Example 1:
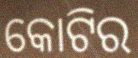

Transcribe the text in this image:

କୋଟିର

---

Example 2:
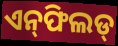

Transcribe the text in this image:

ଏନ୍‌ଫିଲଡ୍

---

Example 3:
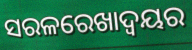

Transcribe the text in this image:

ସରଳରେଖାଦ୍ବୟର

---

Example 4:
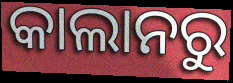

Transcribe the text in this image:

କାଲାନରୁ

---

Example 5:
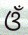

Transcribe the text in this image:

ଓଁ